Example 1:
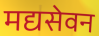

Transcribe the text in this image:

मद्यसेवन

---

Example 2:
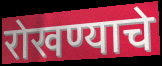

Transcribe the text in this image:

रोखण्याचे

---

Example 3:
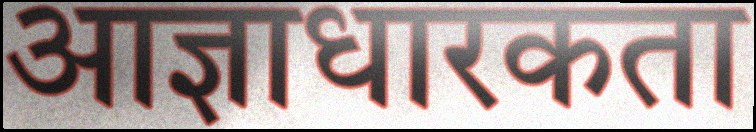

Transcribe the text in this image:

आज्ञाधारकता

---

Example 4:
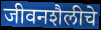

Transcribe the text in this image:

जीवनशैलीचे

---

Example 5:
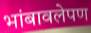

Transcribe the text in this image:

भांबावलेपण